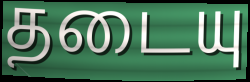
தடையு